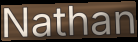
Nathan